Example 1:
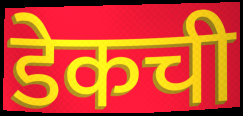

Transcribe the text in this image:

डेकची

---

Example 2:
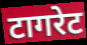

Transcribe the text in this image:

टागरेट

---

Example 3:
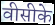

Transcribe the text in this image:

वीसीके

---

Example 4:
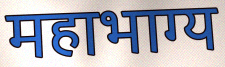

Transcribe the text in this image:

महाभाग्य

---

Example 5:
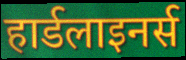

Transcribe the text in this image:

हार्डलाइनर्स